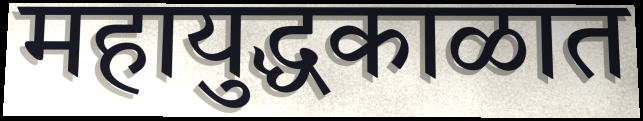
महायुद्धकाळात